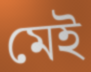
মেই